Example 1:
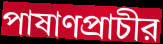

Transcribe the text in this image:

পাষাণপ্রাচীর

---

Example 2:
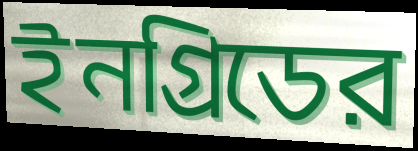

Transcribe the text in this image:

ইনগ্রিডের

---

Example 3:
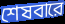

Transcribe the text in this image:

শেষবারে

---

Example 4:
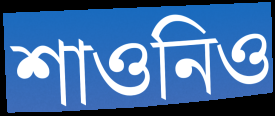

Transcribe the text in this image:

শাওনিও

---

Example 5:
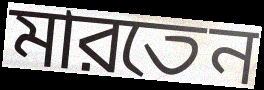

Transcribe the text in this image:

মারতেন